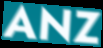
ANZ